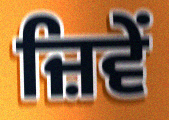
ਜ਼ਿਵੇਂ